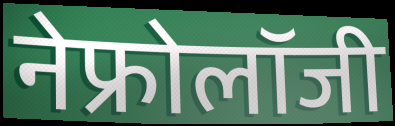
नेफ्रोलॉजी